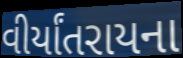
વીર્યાંતરાયના